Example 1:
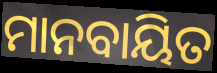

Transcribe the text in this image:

ମାନବାୟିତ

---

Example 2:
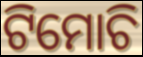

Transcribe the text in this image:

ଟିମୋଚି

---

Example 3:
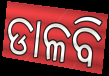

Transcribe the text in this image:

ଡାଳବି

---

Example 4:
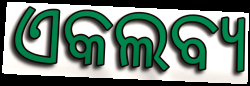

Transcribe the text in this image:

ଏକଲବ୍ୟ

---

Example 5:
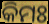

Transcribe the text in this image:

କିମଃ